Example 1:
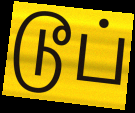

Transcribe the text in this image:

டூப்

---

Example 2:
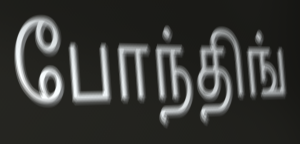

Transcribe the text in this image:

போந்திங்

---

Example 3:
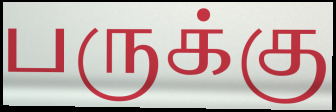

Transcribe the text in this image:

பருக்கு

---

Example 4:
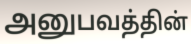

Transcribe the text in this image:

அனுபவத்தின்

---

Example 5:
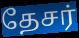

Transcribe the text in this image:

தேசர்